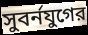
সুবর্নযুগের